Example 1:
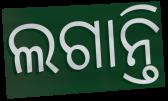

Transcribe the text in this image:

ଲଗାନ୍ତି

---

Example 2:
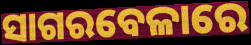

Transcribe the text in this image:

ସାଗରବେଳାରେ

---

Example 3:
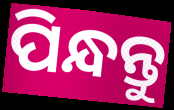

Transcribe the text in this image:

ପିନ୍ଧନ୍ତୁ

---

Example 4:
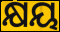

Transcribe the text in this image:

କ୍ଷୟ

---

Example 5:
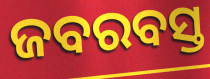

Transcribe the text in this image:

ଜବରବସ୍ତ